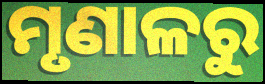
ମୃଣାଳରୁ